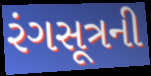
રંગસૂત્રની